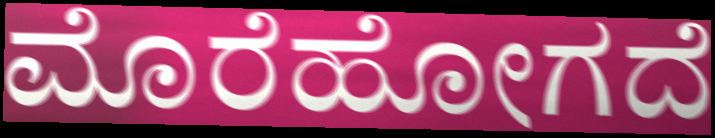
ಮೊರೆಹೋಗದೆ